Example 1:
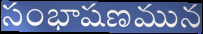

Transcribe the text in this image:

సంభాషణమున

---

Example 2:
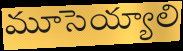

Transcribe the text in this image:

మూసెయ్యాలి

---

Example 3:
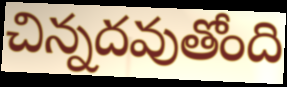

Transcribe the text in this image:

చిన్నదవుతోంది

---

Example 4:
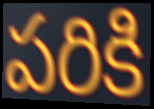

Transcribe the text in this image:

పరికి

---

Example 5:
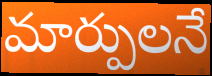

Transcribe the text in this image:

మార్పులనే